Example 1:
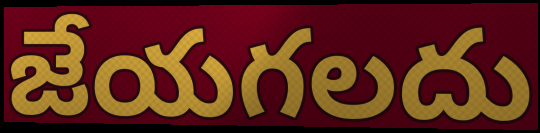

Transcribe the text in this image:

జేయగలదు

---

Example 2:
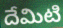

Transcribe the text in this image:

దేమిటి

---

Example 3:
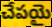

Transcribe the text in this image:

చేపయై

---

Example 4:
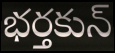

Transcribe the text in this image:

భర్తకున్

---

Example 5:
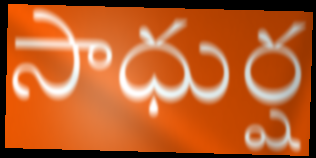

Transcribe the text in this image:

సాధుర్ష